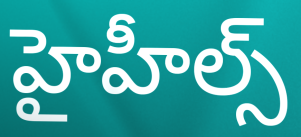
హైహీల్స్